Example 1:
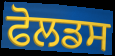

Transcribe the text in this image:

ਫੋਲਡਸ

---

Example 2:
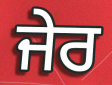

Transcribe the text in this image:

ਜੇਰ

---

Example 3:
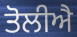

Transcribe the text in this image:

ਤੋਲੀਐ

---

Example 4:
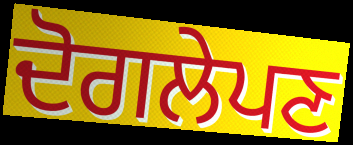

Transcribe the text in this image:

ਦੋਗਲੇਪਣ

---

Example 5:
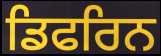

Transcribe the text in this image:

ਡਿਫਰਿਨ